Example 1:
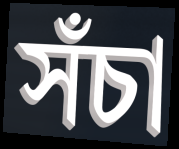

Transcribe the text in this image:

সঁচা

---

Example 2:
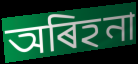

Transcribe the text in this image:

অৰিহনা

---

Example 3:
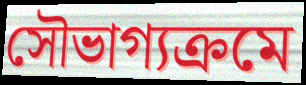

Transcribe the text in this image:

সৌভাগ্যক্ৰমে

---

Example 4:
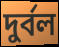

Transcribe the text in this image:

দুৰ্বল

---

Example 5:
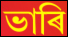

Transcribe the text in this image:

ভাৰি